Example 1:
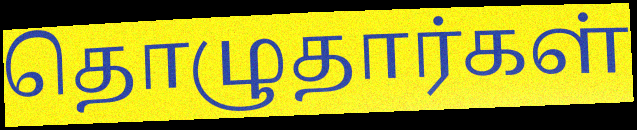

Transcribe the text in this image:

தொழுதார்கள்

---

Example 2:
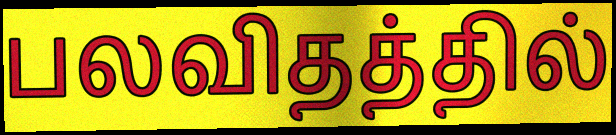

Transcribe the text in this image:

பலவிதத்தில்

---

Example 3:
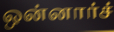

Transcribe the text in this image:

ஒன்னார்ச்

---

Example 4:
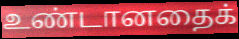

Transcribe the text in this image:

உண்டானதைக்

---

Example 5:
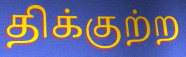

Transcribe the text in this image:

திக்குற்ற